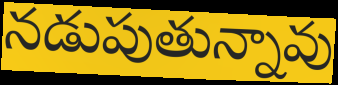
నడుపుతున్నావు